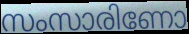
സംസാരിണോ